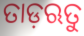
ତାଡ଼ଋତୁ